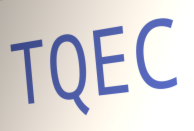
TQEC